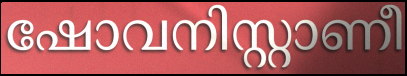
ഷോവനിസ്റ്റാണീ